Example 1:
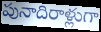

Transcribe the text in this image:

పునాదిరాళ్లుగా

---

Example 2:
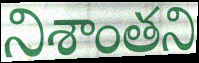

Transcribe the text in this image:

నిశాంతని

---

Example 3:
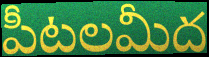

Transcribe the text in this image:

పీటలమీద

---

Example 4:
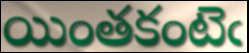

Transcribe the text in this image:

యింతకంటెఁ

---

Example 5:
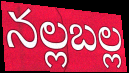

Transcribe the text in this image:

నల్లబల్ల